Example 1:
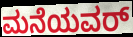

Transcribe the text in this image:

ಮನೆಯವರ್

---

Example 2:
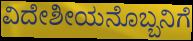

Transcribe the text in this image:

ವಿದೇಶೀಯನೊಬ್ಬನಿಗೆ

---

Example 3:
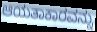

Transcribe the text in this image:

ಆಯತಾಕಾರವನ್ನು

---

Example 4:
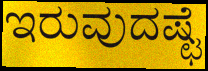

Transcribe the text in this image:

ಇರುವುದಷ್ಟೆ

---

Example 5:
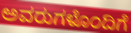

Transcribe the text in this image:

ಅವರುಗಳೊಂದಿಗೆ